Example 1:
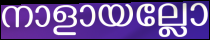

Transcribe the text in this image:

നാളായല്ലോ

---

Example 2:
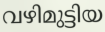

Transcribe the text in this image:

വഴിമുട്ടിയ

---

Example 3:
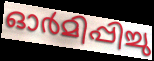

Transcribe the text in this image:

ഓർമിപ്പിച്ചു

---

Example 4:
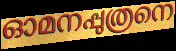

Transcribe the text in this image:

ഓമനപ്പുത്രനെ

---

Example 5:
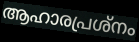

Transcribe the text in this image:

ആഹാരപ്രശ്നം